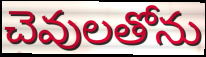
చెవులతోను